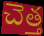
చెత్త